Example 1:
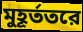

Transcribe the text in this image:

মুহূর্ততরে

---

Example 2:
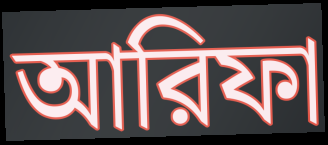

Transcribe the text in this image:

আরিফা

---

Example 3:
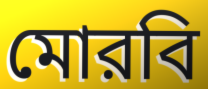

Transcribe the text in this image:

মোরবি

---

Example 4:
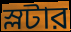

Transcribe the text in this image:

স্লটার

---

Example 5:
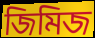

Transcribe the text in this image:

জিমিজ